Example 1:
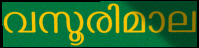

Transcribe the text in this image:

വസൂരിമാല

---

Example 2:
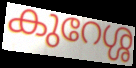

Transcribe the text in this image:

കുറേശ്ശ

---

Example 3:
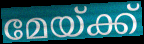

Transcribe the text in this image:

മേയ്ക്ക്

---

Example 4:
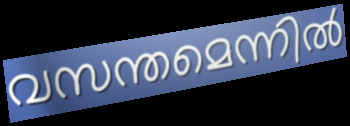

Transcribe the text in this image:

വസന്തമെന്നിൽ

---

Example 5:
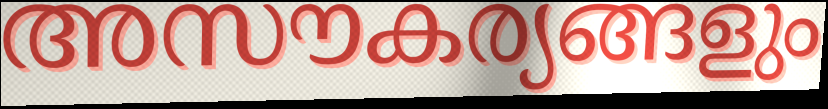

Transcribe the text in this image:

അസൗകര്യങ്ങളും